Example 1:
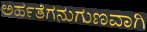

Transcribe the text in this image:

ಅರ್ಹತೆಗನುಗುಣವಾಗಿ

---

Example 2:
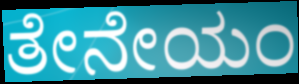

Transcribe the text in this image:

ತೇನೇಯಂ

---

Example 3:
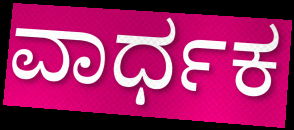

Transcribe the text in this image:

ವಾರ್ಧಕ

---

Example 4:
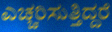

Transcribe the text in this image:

ಎಚ್ಚರಿಸುತ್ತಿದ್ದರೆ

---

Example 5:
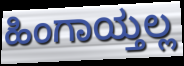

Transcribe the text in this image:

ಹಿಂಗಾಯ್ತಲ್ಲ